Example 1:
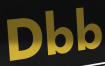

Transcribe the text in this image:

Dbb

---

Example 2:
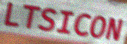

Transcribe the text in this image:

LTSICON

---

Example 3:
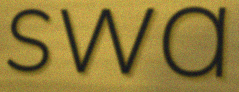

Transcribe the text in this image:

swa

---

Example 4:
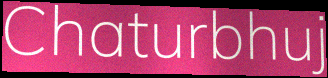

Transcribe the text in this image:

Chaturbhuj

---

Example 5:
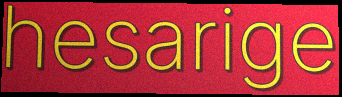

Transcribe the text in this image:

hesarige